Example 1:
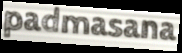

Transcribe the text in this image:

padmasana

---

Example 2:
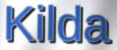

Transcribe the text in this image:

Kilda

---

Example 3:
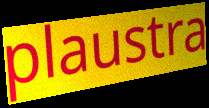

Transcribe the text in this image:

plaustra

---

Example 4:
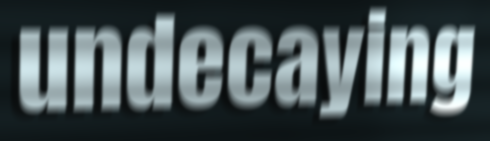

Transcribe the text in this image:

undecaying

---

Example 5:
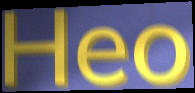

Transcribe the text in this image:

Heo